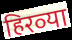
हिरव्‍या